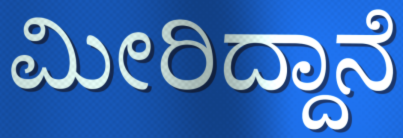
ಮೀರಿದ್ದಾನೆ